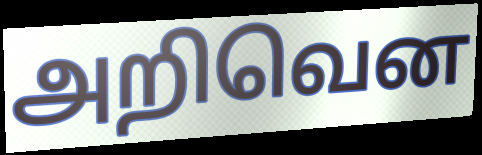
அறிவென